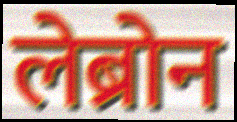
लेब्रोन